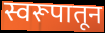
स्वरूपातून